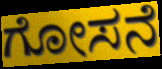
ಗೋಸನೆ